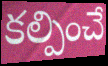
కల్పించే